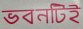
ভবনটিই